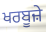
ਖਰਬੂਜ਼ੇ